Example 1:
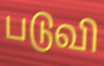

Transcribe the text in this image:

படுவி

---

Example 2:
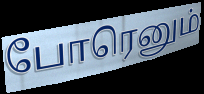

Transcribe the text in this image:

போரெனும்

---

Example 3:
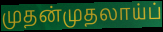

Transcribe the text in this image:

முதன்முதலாய்ப்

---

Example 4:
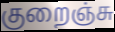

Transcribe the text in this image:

குறைஞ்சு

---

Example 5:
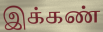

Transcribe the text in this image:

இக்கண்